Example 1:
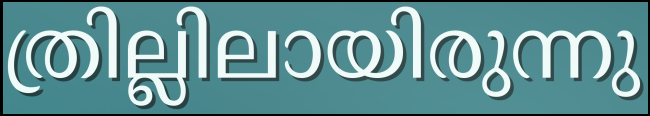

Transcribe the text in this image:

ത്രില്ലിലായിരുന്നു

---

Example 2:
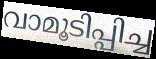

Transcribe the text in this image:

വാമൂടിപ്പിച്ച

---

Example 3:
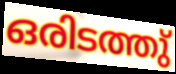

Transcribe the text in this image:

ഒരിടത്തു്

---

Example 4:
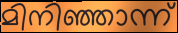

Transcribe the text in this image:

മിനിഞ്ഞാന്ന്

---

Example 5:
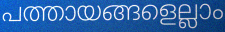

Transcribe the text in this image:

പത്തായങ്ങളെല്ലാം